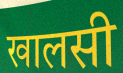
खालसी